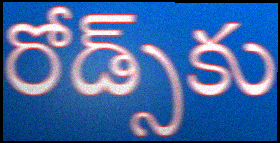
రోడ్స్‌కు